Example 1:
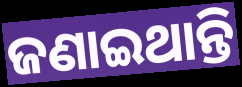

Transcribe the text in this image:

ଜଣାଇଥାନ୍ତି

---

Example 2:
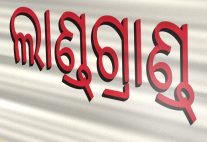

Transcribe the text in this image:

ଲାଣ୍ଡ୍‍ଗ୍ରାଣ୍ଡ୍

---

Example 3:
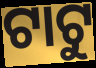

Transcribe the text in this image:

ଟାଟୁ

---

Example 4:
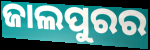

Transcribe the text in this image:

ଜାଲପୁରର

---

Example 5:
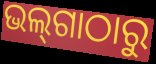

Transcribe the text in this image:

ଭଲ୍‌ଗାଠାରୁ